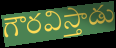
గౌరవిస్తాడు